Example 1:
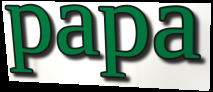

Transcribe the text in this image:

papa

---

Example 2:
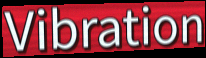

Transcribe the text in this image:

Vibration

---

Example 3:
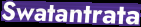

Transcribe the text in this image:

Swatantrata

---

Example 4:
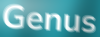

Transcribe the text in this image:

Genus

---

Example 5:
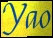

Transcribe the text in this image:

Yao